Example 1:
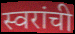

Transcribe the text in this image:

स्वरांची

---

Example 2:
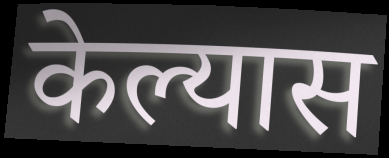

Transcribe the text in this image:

केल्यास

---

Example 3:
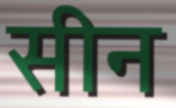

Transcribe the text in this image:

सीन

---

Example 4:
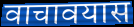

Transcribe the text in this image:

वाचावयास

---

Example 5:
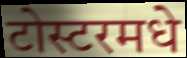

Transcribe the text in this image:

टोस्टरमधे